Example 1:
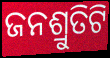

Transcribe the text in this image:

ଜନଶ୍ରୁତିଟି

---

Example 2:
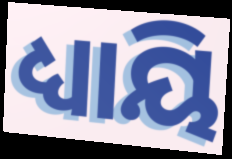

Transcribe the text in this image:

ଧ୍ୟାୟି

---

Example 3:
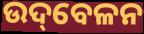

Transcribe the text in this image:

ଉଦ୍‌ବେଳନ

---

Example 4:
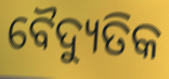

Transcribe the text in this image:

ବୈଦ୍ୟୁତିକ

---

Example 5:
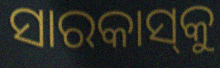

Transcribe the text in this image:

ସାରକାସ୍‌କୁ